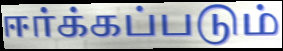
ஈர்க்கப்படும்